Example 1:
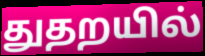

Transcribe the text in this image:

துதறயில்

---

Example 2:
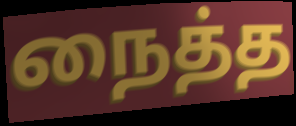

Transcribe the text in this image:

நைத்த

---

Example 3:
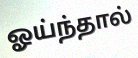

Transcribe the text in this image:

ஓய்ந்தால்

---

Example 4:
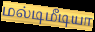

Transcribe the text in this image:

மல்டிமீடியா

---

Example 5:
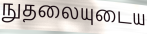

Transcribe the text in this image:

நுதலையுடைய